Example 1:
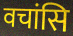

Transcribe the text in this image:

वचांसि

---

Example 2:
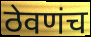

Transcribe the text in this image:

ठेवणंच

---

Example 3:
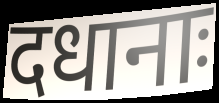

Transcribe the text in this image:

दधानाः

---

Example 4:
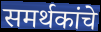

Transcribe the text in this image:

समर्थकांचे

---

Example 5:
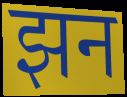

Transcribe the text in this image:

झन